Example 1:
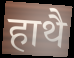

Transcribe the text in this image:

हाथै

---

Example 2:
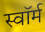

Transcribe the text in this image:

स्वॉर्म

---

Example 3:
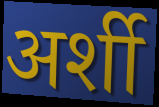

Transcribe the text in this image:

अर्शी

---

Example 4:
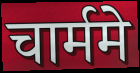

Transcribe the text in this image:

चार्ममे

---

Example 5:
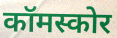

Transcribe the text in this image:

कॉमस्कोर